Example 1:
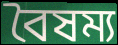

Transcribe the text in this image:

বৈষম্য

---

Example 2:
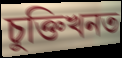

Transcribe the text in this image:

চুক্তিখনত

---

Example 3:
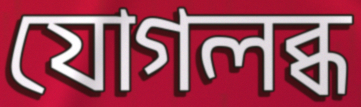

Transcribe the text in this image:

যোগলব্ধ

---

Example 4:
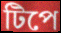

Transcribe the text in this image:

টিপে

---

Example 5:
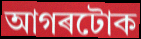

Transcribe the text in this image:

আগৰটোক